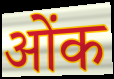
ओंक